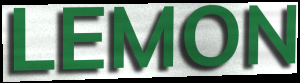
LEMON